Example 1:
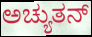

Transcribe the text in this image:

ಅಚ್ಯುತನ್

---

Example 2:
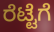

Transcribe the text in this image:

ರೆಟ್ಟೆಗೆ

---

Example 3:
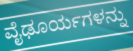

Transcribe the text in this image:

ವೈಢೂರ್ಯಗಳನ್ನು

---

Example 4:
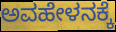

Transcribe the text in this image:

ಅವಹೇಳನಕ್ಕೆ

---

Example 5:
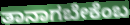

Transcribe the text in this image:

ತಾನಾಗಬೇಕೆಂಬ